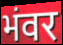
भंवर